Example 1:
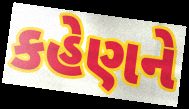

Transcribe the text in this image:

કહેણને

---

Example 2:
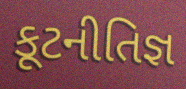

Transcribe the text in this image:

કૂટનીતિજ્ઞ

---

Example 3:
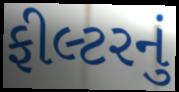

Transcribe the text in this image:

ફીલ્ટરનું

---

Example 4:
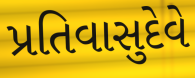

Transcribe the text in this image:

પ્રતિવાસુદેવે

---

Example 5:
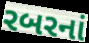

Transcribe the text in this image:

રબરનાં